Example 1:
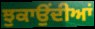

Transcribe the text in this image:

ਝੁਕਾਉਂਦੀਆਂ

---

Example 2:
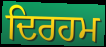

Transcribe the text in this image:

ਦਿਰਹਮ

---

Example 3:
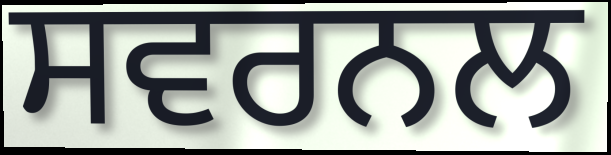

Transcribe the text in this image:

ਸਵਰਨਲ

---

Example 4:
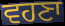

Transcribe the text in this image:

ਵਹਣਾ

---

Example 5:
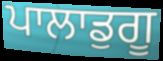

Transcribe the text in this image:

ਪਾਲਾਡੁਗੂ